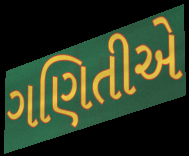
ગણિતીએ